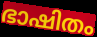
ഭാഷിതം